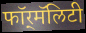
फॉर्मॅलिटी